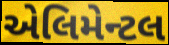
એલિમેન્ટલ